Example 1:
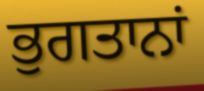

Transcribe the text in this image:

ਭੁਗਤਾਨਾਂ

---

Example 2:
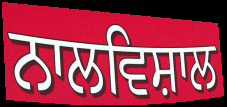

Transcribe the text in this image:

ਨਾਲਵਿਸ਼ਾਲ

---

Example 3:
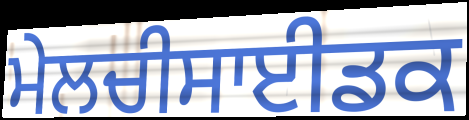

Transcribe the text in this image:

ਮੇਲਚੀਸਾਈਡਕ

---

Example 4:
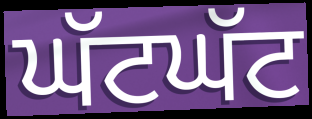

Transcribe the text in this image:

ਘੱਟਘੱਟ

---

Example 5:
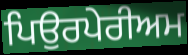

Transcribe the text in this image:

ਪਿਉਰਪੇਰੀਅਮ